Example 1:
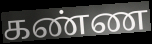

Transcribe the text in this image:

கண்ண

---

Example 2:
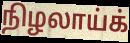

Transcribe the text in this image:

நிழலாய்க்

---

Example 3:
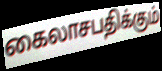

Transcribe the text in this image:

கைலாசபதிக்கும்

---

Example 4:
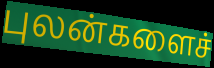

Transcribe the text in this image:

புலன்களைச்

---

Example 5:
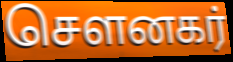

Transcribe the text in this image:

சௌனகர்